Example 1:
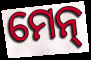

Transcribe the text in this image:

ମେନ୍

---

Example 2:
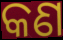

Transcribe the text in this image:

କଣ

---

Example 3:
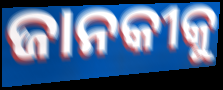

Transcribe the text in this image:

ଜାନକୀକୁ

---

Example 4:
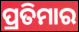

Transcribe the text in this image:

ପ୍ରତିମାର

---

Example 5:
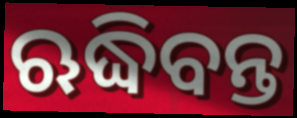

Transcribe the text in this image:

ଋଦ୍ଧିବନ୍ତ